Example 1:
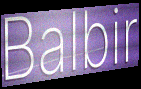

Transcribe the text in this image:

Balbir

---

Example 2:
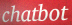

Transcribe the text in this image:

chatbot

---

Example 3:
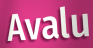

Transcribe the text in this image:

Avalu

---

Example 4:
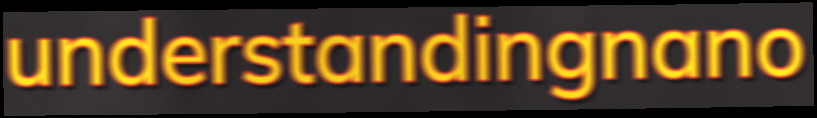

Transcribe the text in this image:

understandingnano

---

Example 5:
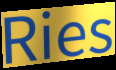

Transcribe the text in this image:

Ries